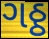
ગઠ્ઠ